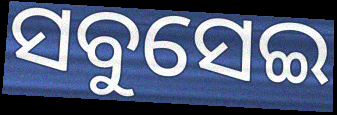
ସବୁସେଇ